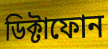
ডিক্টাফোন